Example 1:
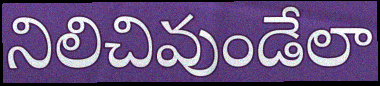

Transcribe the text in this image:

నిలిచివుండేలా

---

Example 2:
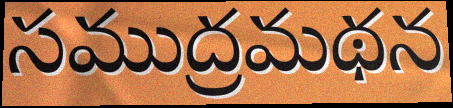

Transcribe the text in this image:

సముద్రమథన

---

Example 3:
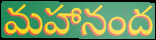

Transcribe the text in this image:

మహానంద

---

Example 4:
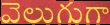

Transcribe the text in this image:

వెలుగుగా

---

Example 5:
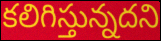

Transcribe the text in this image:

కలిగిస్తున్నదని